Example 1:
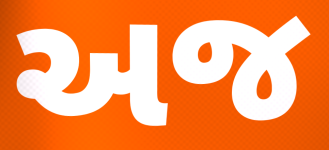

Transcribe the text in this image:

અજ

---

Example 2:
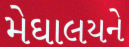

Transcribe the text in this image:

મેઘાલયને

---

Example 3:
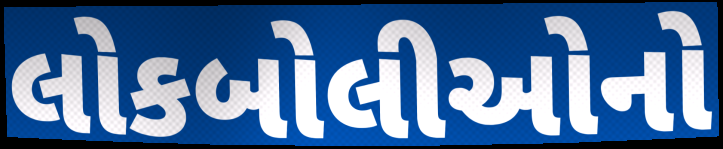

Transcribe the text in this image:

લોકબોલીઓનો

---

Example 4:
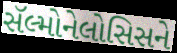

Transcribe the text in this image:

સૅલ્મોનેલોસિસને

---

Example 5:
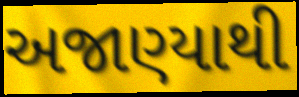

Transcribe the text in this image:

અજાણ્યાથી